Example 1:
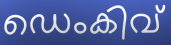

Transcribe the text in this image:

ഡെംകിവ്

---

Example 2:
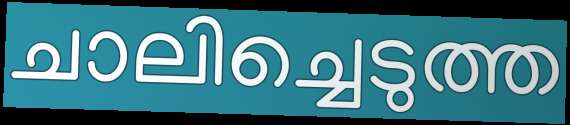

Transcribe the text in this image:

ചാലിച്ചെടുത്ത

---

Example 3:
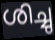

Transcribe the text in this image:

ശിച്ചു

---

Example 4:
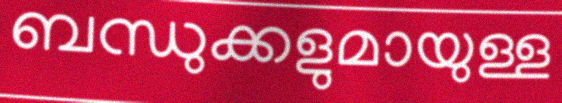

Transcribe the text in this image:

ബന്ധുക്കളുമായുള്ള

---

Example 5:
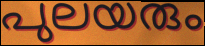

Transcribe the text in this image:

പുലയരും